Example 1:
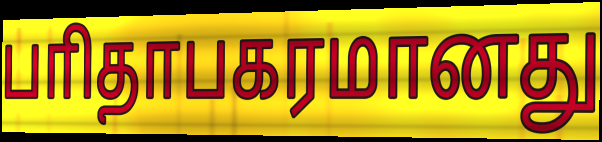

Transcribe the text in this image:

பரிதாபகரமானது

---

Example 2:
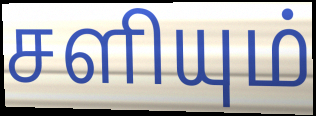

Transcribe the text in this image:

சளியும்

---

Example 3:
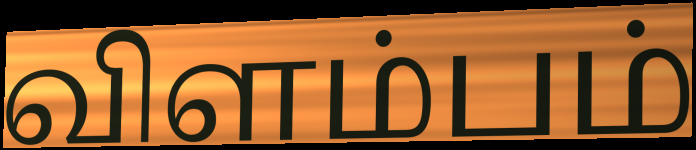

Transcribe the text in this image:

விளம்பம்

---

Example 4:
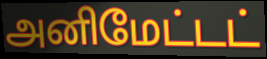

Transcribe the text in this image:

அனிமேட்டட்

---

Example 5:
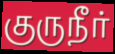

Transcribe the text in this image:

குருநீர்